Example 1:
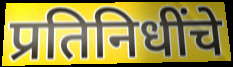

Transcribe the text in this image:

प्रतिनिधींचे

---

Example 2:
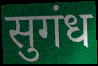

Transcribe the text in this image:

सुगंध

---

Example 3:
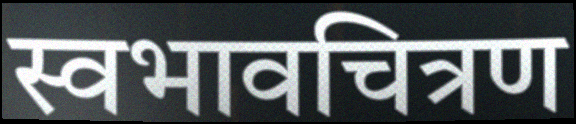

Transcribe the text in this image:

स्वभावचित्रण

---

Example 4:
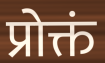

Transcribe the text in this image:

प्रोक्तं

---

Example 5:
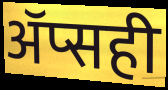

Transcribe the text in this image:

ॲप्सही